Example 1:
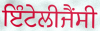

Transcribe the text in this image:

ਇੰਟੇਲੀਜੈਂਸੀ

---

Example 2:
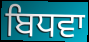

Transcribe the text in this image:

ਬਿਧਵਾ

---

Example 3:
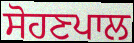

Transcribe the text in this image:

ਸੋਹਣਪਾਲ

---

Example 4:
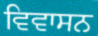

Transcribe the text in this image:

ਵਿਵਾਸਨ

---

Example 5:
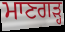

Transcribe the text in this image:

ਮਾਣਗੜ੍ਹ